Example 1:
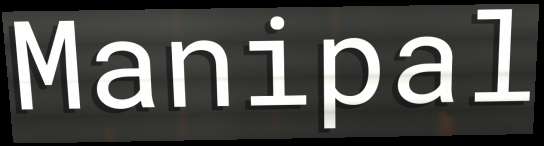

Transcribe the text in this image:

Manipal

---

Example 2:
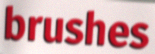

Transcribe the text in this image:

brushes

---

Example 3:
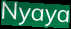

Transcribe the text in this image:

Nyaya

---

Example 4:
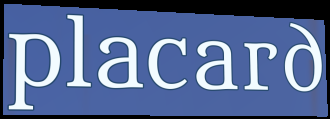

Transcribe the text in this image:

placard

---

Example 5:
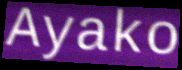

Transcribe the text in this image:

Ayako